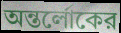
অন্তর্লোকের